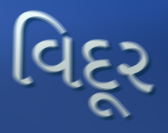
વિદૂર